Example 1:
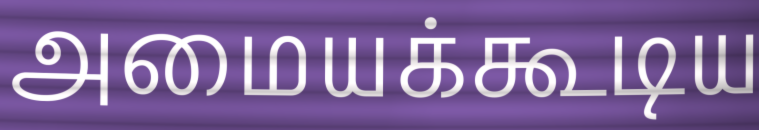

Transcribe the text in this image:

அமையக்கூடிய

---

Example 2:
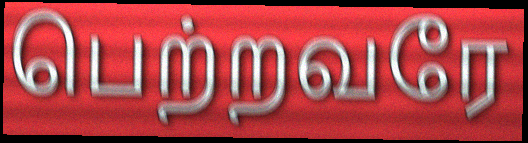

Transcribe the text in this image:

பெற்றவரே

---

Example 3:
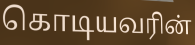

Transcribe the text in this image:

கொடியவரின்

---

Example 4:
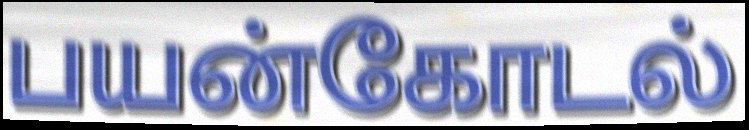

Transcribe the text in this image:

பயன்கோடல்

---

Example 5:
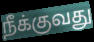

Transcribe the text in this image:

நீக்குவது